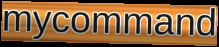
mycommand